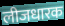
लीजधारक